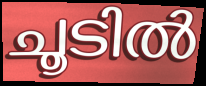
ചൂടിൽ